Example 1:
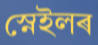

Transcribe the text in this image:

স্নেইলৰ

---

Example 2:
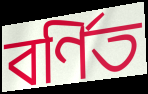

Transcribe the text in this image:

বৰ্ণিত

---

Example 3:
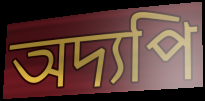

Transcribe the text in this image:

অদ্যপি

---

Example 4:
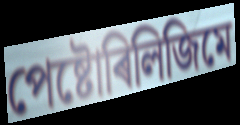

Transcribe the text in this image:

পেষ্টোৰিলিজিমে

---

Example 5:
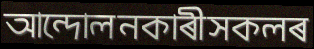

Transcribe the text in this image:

আন্দোলনকাৰীসকলৰ